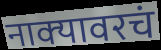
नाक्यावरचं